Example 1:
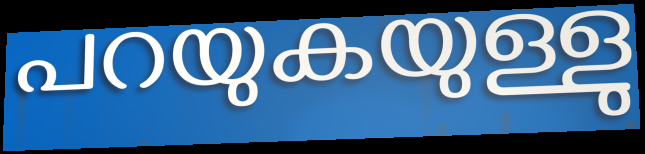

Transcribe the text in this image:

പറയുകയുള്ളു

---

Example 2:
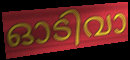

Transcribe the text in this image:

ഓടിവാ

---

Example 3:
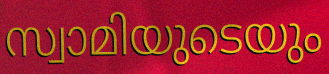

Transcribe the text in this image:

സ്വാമിയുടെയും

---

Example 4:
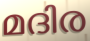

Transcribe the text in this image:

മദിര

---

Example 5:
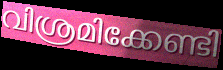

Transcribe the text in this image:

വിശ്രമിക്കേണ്ടി